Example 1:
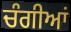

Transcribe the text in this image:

ਚੰਗੀਆਂ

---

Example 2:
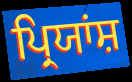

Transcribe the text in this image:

ਪ੍ਰਿਯਾਂਸ਼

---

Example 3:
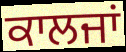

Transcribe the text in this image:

ਕਾਲਜਾਂ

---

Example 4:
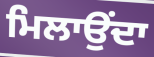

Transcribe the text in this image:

ਮਿਲਾਉਂਦਾ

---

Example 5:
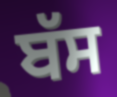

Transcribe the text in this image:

ਬੱਸ